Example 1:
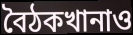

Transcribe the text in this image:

বৈঠকখানাও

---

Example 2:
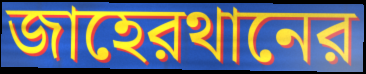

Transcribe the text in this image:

জাহেরথানের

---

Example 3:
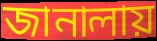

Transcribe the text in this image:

জানালায়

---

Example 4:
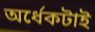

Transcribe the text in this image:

অর্ধেকটাই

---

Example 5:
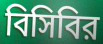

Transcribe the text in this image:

বিসিবির